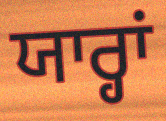
ਯਾਰ੍ਹਾਂ